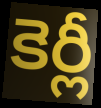
కెర్లీ